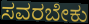
ಸವರಬೇಕು